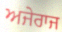
ਅਜੇਰਾਜ